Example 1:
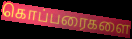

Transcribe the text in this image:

கொப்பரைகளை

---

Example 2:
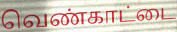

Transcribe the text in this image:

வெண்காட்டை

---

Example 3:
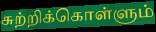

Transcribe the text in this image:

சுற்றிக்கொள்ளும்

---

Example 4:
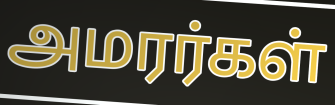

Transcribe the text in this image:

அமரர்கள்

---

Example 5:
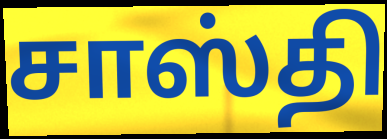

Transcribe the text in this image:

சாஸ்தி